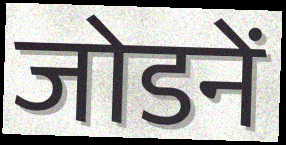
जोडनें